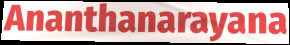
Ananthanarayana